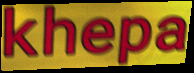
khepa